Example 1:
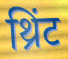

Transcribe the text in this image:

थ्रिंट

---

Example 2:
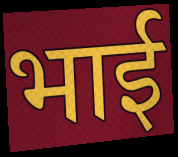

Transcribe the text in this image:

भार्ई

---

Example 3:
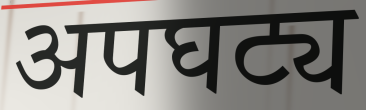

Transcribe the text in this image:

अपघट्य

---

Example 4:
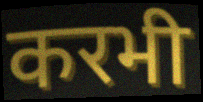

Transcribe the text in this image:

करभी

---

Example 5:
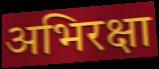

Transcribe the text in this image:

अभिरक्षा